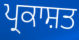
ਪ੍ਰਕਾਸ਼ਤ